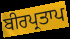
ਬੀਰਪ੍ਰਤਾਪ